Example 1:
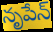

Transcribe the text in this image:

నృపేన్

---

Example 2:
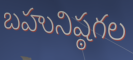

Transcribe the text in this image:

బహునిష్ఠగల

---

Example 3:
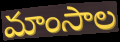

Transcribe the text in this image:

మాంసాల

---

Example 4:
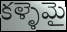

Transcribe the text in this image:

కళ్ళెమై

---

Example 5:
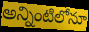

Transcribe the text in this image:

అన్నింటిలోనూ